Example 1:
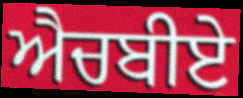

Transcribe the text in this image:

ਐਚਬੀਏ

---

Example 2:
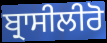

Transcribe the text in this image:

ਬ੍ਰਾਸੀਲੀਰੋ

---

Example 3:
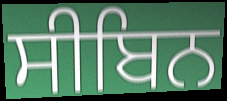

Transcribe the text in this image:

ਸੀਬਿਨ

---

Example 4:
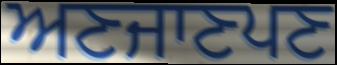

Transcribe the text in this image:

ਅਣਜਾਣਪਣ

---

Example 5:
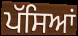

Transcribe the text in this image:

ਪੱਸਿਆਂ